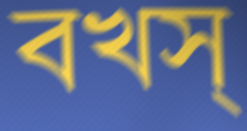
বখস্